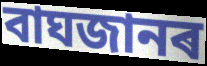
বাঘজানৰ